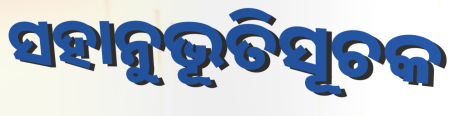
ସହାନୁଭୂତିସୂଚକ